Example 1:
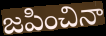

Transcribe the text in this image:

జపించినా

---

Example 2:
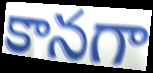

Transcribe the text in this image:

కానగా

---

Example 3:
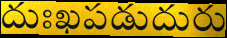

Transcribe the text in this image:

దుఃఖపడుదురు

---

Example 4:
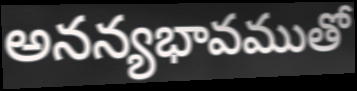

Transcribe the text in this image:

అనన్యభావముతో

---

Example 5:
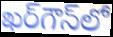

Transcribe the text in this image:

ఖర్‌గౌన్‌లో